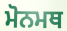
ਮੋਨਮਥ